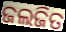
ଜଲଜିତ